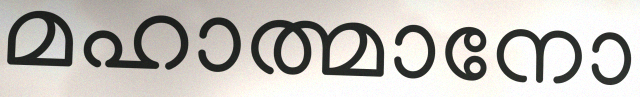
മഹാത്മാനോ